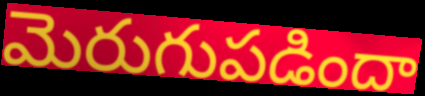
మెరుగుపడిందా